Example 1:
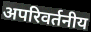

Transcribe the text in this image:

अपरिवर्तनीय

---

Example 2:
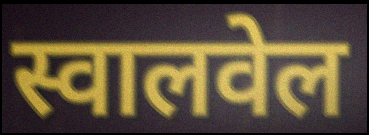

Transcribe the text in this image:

स्वालवेल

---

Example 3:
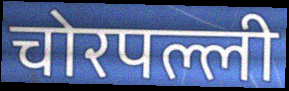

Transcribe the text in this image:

चोरपल्ली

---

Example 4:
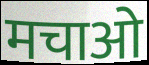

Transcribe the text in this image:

मचाओ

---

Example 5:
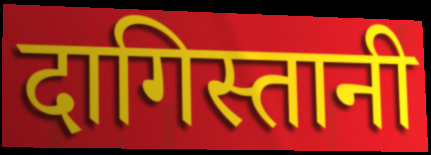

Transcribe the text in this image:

दागिस्तानी